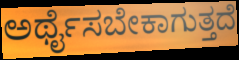
ಅರ್ಥೈಸಬೇಕಾಗುತ್ತದೆ